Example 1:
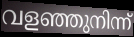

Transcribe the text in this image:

വളഞ്ഞുനിന്ന്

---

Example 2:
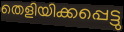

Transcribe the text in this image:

തെളിയിക്കപ്പെട്ടു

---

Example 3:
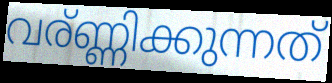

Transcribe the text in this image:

വര്ണ്ണിക്കുന്നത്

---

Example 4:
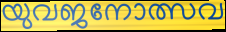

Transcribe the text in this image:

യുവജനോത്സവ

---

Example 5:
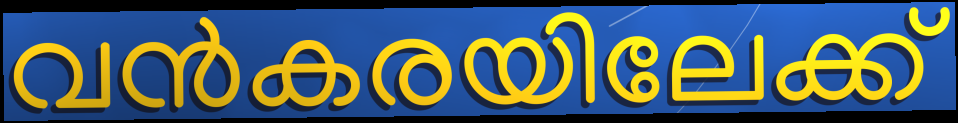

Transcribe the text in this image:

വൻകരയിലേക്ക്